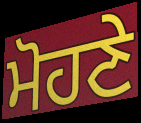
ਮੋਹਣੇ